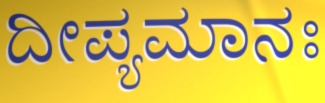
ದೀಪ್ಯಮಾನಃ